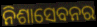
ନିଶାସେବନର